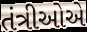
તંત્રીઓએ